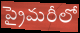
ప్రైమరీలో